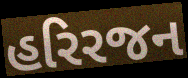
હરિરજન